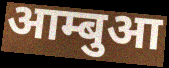
आम्बुआ